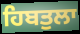
ਹਿਬਤੁਲਾ